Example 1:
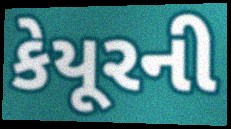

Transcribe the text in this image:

કેયૂરની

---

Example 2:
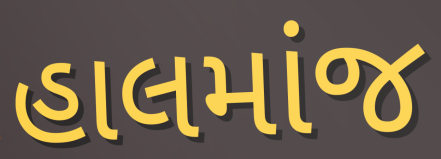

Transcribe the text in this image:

હાલમાંજ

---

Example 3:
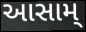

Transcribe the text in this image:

આસામ્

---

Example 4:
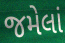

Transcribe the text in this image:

જમેલાં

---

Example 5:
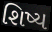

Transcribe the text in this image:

શિષ્ય